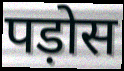
पड़ोस